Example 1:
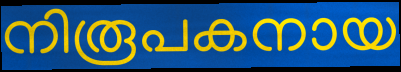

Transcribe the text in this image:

നിരൂപകനായ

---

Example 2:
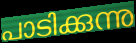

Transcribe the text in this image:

പാടിക്കുന്നു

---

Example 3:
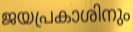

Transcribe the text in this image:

ജയപ്രകാശിനും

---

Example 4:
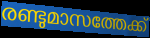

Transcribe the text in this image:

രണ്ടുമാസത്തേക്ക്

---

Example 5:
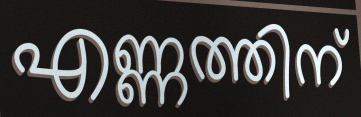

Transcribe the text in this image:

എണ്ണത്തിന്